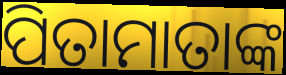
ପିତାମାତାଙ୍କ